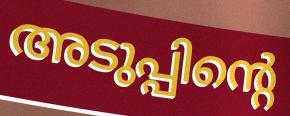
അടുപ്പിന്റെ